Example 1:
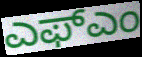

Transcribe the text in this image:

ಎಫ್ಎಂ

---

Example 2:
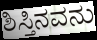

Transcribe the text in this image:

ಶಿಸ್ತಿನವನು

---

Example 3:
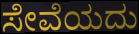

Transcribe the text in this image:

ಸೇವೆಯದು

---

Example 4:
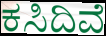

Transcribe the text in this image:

ಕಸಿದಿವೆ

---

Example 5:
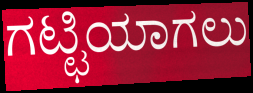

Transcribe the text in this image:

ಗಟ್ಟಿಯಾಗಲು